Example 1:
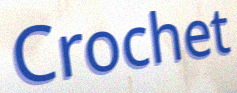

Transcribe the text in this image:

Crochet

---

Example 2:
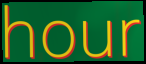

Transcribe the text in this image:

hour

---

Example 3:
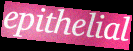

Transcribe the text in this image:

epithelial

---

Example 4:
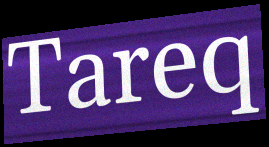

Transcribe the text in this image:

Tareq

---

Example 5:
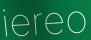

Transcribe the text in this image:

iereo